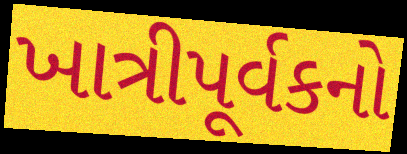
ખાત્રીપૂર્વકનો